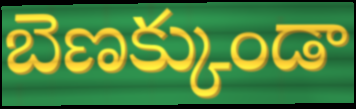
బెణక్కుండా